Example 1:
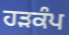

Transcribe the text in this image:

ਹਡ਼ਕੰਪ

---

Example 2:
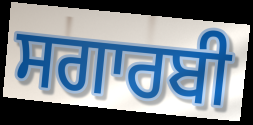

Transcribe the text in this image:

ਸਗਾਰਬੀ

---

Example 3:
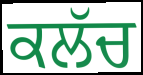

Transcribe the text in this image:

ਕਲੱਚ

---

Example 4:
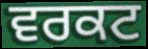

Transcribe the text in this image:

ਵਰਕਟ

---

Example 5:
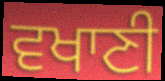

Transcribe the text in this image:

ਵਖਾਣੀ